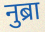
नुब्रा